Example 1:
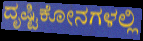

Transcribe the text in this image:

ದೃಷ್ಟಿಕೋನಗಳಲ್ಲಿ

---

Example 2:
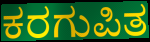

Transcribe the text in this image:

ಕರಗುಪಿತ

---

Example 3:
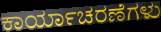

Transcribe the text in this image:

ಕಾರ್ಯಾಚರಣೆಗಳು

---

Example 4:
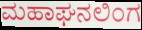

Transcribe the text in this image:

ಮಹಾಘನಲಿಂಗ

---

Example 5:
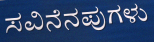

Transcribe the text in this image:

ಸವಿನೆನಪುಗಳು